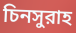
চিনসুরাহ